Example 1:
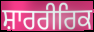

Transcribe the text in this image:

ਸ਼ਾਰਰੀਰਿਕ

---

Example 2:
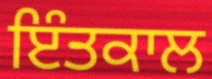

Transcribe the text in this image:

ਇੰਤਕਾਲ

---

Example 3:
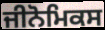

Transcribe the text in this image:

ਜੀਨੋਮਿਕਸ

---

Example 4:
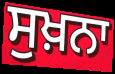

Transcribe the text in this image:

ਸੁਖ਼ਨਾ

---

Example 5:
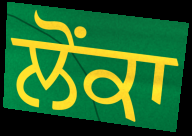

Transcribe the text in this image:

ਲੋਂਕਾ